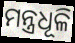
ମନ୍ତ୍ରଧୂଳି